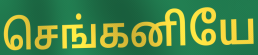
செங்கனியே